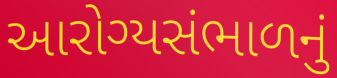
આરોગ્યસંભાળનું